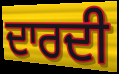
ਦਾਰਦੀ